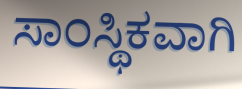
ಸಾಂಸ್ಥಿಕವಾಗಿ